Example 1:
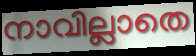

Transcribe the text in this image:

നാവില്ലാതെ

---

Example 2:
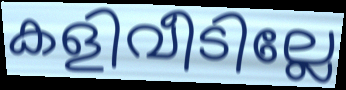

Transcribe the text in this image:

കളിവീടില്ലേ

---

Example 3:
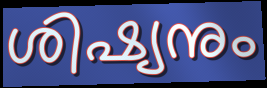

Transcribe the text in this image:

ശിഷ്യനും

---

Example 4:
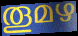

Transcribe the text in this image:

തൂമഴ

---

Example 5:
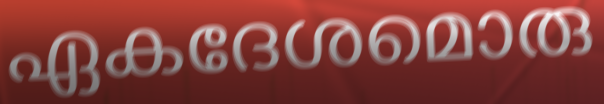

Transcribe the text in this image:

ഏകദേശമൊരു